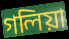
গলিয়া